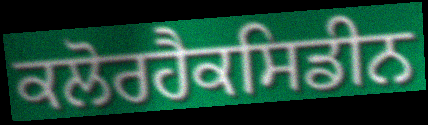
ਕਲੋਰਹੈਕਸਿਡੀਨ